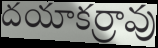
దయాకర్రావు